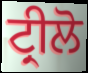
ਟ੍ਰੀਲੋ